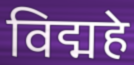
विद्महे